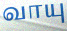
வாயு